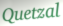
Quetzal